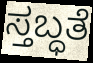
ಸ್ತಬ್ಧತೆ